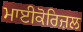
ਮਾਈਕੋਰਿਜ਼ਲ